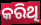
କରିଥି